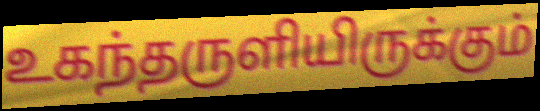
உகந்தருளியிருக்கும்